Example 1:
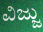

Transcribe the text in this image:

ವಿಜ್ಜು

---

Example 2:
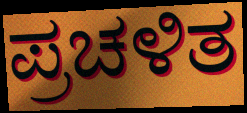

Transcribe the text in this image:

ಪ್ರಚಳಿತ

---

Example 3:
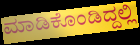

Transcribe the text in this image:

ಮಾಡಿಕೊಂಡಿದ್ದಲ್ಲಿ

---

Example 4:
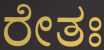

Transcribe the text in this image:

ರೇತಃ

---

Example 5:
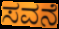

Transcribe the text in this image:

ಸವನೆ